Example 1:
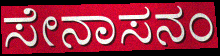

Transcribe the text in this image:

ಸೇನಾಸನಂ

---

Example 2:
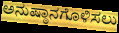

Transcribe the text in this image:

ಅನುಷ್ಠಾನಗೊಳಿಸಲು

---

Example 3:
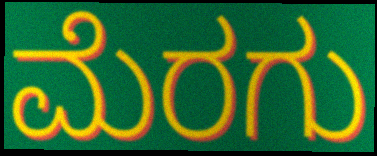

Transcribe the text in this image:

ಮೆರಗು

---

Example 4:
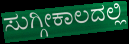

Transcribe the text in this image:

ಸುಗ್ಗೀಕಾಲದಲ್ಲಿ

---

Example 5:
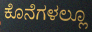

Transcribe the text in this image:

ಕೊನೆಗಳಲ್ಲೂ